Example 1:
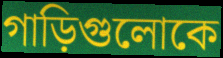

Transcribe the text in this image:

গাড়িগুলোকে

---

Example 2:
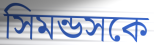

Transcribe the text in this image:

সিমন্ডসকে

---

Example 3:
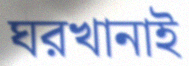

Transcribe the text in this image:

ঘরখানাই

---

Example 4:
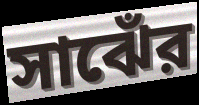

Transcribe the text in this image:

সাঝেঁর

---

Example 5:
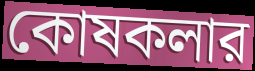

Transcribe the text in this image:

কোষকলার